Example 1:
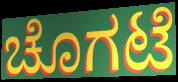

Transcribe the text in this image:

ಚೊಗಟೆ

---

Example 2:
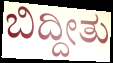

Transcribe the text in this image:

ಬಿದ್ದೀತು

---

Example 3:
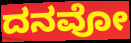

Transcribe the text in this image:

ದನವೋ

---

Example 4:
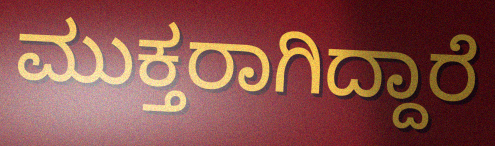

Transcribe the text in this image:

ಮುಕ್ತರಾಗಿದ್ದಾರೆ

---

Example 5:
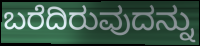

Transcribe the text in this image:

ಬರೆದಿರುವುದನ್ನು